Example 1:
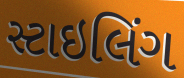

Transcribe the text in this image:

સ્ટાઇલિંગ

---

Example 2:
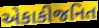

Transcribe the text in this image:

એકાકીજનિત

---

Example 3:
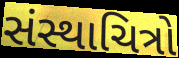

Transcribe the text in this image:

સંસ્થાચિત્રો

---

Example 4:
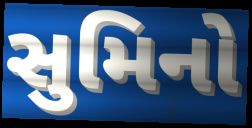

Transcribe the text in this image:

સુમિનો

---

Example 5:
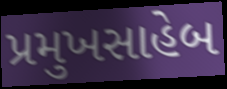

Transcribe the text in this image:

પ્રમુખસાહેબ